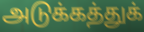
அடுக்கத்துக்